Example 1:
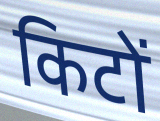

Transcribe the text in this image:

किटों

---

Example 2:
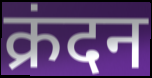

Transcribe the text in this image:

क्रंदन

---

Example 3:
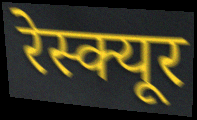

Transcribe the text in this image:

रेस्क्यूर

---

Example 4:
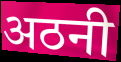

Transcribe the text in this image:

अठनी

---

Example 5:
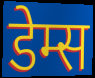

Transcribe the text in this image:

डेम्स